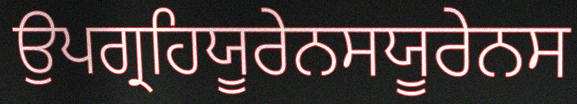
ਉਪਗ੍ਰਹਿਯੂਰੇਨਸਯੂਰੇਨਸ